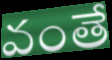
వంతే